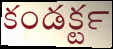
కండక్టర్‍